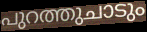
പുറത്തുചാടും